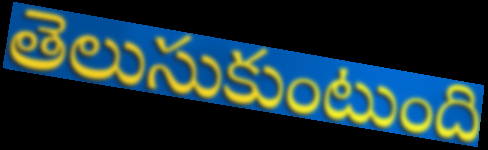
తెలుసుకుంటుంది